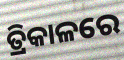
ତ୍ରିକାଳରେ